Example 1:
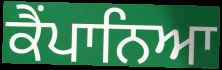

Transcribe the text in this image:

ਕੈਂਪਾਨਿਆ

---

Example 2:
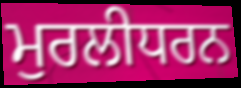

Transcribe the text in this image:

ਮੁਰਲੀਧਰਨ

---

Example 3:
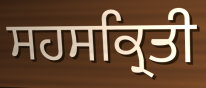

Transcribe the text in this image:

ਸਹਸਕ੍ਰਿਤੀ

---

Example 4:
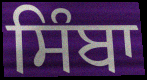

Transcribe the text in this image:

ਸਿੰਬਾ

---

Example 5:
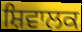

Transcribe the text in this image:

ਸ਼ਿਵਾਲਕ